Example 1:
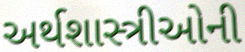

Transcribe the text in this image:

અર્થશાસ્ત્રીઓની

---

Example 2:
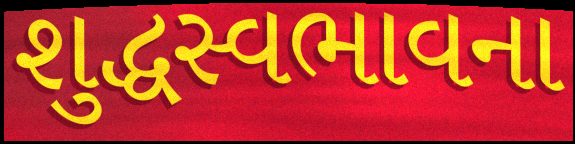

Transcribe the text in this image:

શુદ્ધસ્વભાવના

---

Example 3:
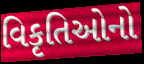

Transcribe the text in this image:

વિકૃતિઓનો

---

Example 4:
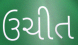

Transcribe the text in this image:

ઉચીત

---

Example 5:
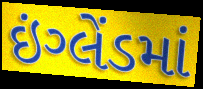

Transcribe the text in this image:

ઇંગ્લેંડમાં